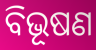
ବିଭୂଷଣ